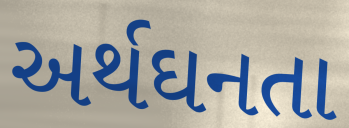
અર્થઘનતા